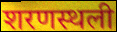
शरणस्थली